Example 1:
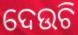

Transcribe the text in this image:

ଦେଉଚି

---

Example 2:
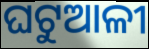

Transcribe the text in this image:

ଘଟୁଆଳୀ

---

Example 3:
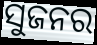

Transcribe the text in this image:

ସୁଜନର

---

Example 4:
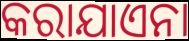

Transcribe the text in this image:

କରାଯାଏନା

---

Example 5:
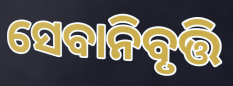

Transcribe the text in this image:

ସେବାନିବୃତ୍ତି